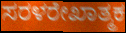
ಸರಳರೇಖಾತ್ಮಕ